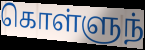
கொள்ளுந்